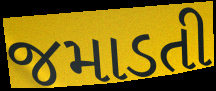
જમાડતી